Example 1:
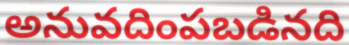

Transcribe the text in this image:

అనువదింపబడినది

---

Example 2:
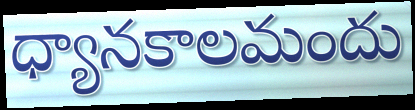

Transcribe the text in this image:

ధ్యానకాలమందు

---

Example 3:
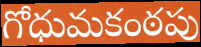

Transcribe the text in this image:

గోధుమకంఠపు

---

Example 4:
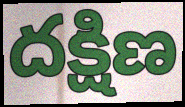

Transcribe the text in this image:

దక్షిణ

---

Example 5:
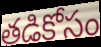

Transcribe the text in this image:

తడికోసం